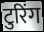
टुरिंग